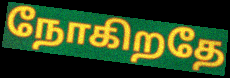
நோகிறதே